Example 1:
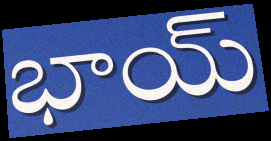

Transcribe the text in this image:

భాయ్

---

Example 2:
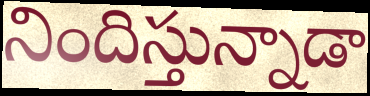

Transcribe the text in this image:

నిందిస్తున్నాడా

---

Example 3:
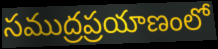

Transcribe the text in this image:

సముద్రప్రయాణంలో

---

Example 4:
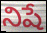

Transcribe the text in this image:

నిషే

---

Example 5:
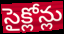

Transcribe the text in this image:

సైక్లోన్లు